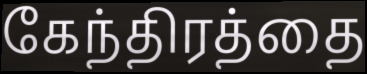
கேந்திரத்தை